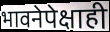
भावनेपेक्षाही